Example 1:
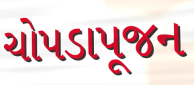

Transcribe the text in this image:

ચોપડાપૂજન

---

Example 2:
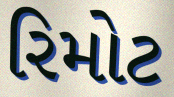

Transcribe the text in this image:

રિમોટ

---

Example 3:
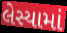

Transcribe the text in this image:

લેસ્યામાં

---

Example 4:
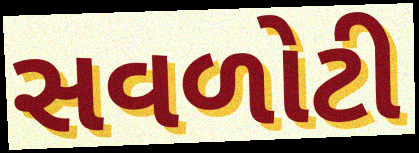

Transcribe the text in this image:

સવળોટી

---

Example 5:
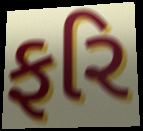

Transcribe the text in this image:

ફરિ